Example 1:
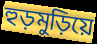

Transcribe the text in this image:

হুড়মুড়িয়ে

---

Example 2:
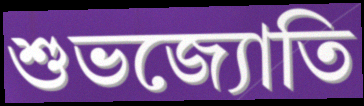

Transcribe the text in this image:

শুভজ্যোতি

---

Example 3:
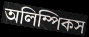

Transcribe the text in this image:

অলিম্পিকস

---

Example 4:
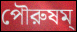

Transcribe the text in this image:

পৌরুষম্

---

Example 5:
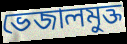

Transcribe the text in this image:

ভেজালমুক্ত